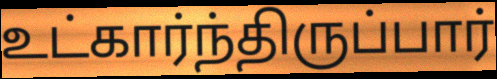
உட்கார்ந்திருப்பார்